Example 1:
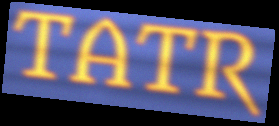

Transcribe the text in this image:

TATR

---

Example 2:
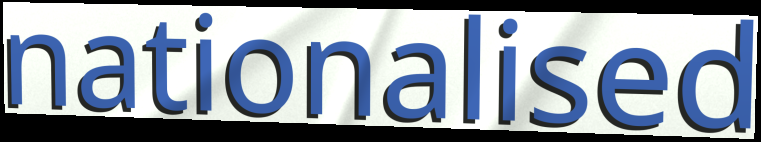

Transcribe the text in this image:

nationalised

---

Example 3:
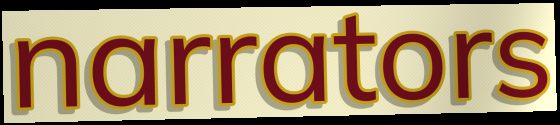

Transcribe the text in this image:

narrators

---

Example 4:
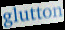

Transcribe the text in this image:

glutton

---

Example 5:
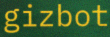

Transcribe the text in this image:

gizbot